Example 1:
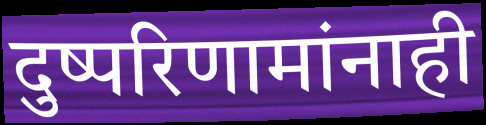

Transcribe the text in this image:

दुष्परिणामांनाही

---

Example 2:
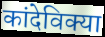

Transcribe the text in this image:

कांदेविक्या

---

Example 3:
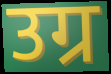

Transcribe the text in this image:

उग्र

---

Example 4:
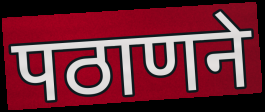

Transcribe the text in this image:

पठाणने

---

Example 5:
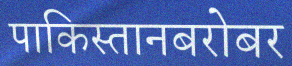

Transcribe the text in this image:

पाकिस्तानबरोबर